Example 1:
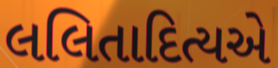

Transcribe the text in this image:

લલિતાદિત્યએ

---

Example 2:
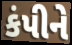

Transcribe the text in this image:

કંપીને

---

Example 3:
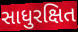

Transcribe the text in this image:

સાધુરક્ષિત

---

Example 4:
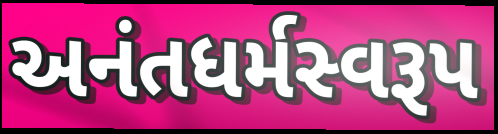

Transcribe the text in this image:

અનંતધર્મસ્વરૂપ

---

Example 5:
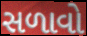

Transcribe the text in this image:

સળાવો